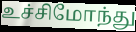
உச்சிமோந்து